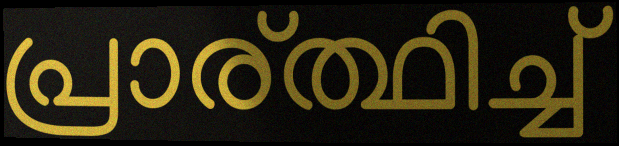
പ്രാര്ത്ഥിച്ച്